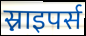
स्नाइपर्स